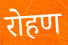
रोहण